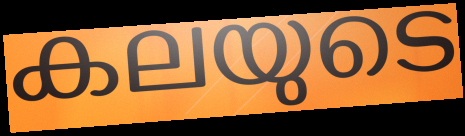
കലയുടെ